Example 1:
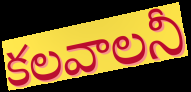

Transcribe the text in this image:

కలవాలనీ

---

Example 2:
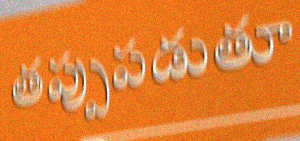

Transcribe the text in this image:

తప్పుపడుతూ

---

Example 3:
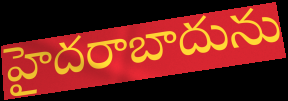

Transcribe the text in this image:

హైదరాబాదును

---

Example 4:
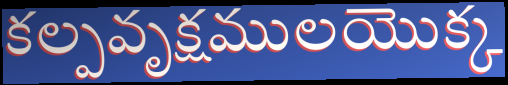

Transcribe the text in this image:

కల్పవృక్షములయొక్క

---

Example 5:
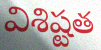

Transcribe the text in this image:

విశిష్టత